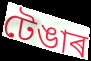
টেঙাৰ